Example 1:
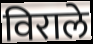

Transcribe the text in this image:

विराले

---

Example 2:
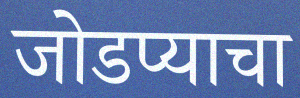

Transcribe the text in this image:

जोडप्याचा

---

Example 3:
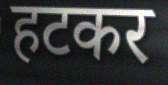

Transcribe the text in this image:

हटकर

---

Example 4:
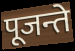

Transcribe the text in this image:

पूजन्ते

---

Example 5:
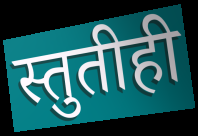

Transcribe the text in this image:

स्तुतीही